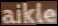
aikle